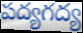
పద్యగద్య